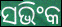
ସଭିଂକ